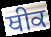
ਥੀਕ